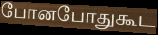
போனபோதுகூட